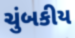
ચુંબકીય